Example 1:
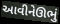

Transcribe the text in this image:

આવીનેઊભું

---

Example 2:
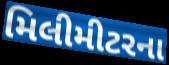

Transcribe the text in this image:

મિલીમીટરના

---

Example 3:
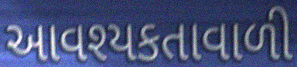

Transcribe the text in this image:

આવશ્યકતાવાળી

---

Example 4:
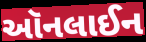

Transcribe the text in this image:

ઑનલાઈન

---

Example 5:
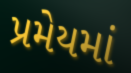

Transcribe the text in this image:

પ્રમેયમાં